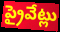
ప్రైవేట్లు